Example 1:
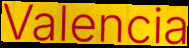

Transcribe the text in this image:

Valencia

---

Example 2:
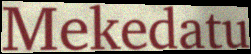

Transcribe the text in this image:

Mekedatu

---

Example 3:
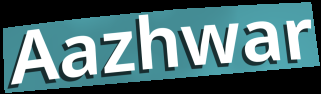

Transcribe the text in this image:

Aazhwar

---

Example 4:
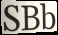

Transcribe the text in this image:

SBb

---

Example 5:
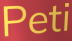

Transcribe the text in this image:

Peti